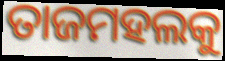
ତାଜମହଲକୁ